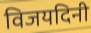
विजयदिनी